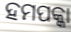
ହମପକ୍କା